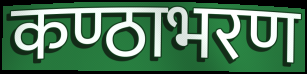
कण्ठाभरण